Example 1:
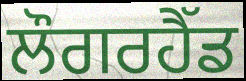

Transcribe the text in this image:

ਲੌਗਰਹੈੱਡ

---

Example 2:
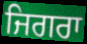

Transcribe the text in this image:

ਜਿਗਰਾ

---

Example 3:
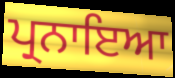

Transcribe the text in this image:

ਪ੍ਰਨਾਇਆ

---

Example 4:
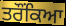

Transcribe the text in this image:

ਤਰੌਂਕਿਆ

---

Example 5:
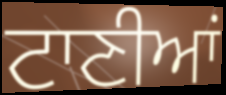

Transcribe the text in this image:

ਟਾਣੀਆਂ